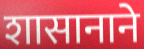
शासानाने